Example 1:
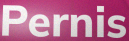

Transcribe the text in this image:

Pernis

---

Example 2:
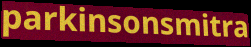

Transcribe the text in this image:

parkinsonsmitra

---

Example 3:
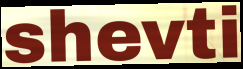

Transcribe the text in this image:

shevti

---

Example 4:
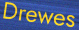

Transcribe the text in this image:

Drewes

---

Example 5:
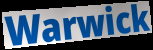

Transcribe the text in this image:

Warwick